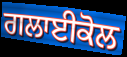
ਗਲਾਈਕੋਲ